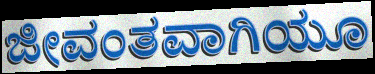
ಜೀವಂತವಾಗಿಯೂ